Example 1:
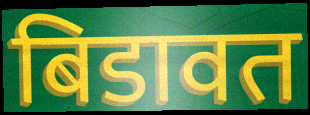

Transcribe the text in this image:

बिडावत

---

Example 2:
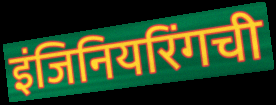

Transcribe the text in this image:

इंजिनियरिंगची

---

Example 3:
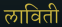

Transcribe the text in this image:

लाविती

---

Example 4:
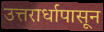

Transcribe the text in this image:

उत्तरार्धापासून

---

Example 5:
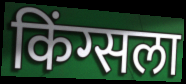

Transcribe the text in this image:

किंग्सला